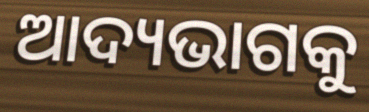
ଆଦ୍ୟଭାଗକୁ